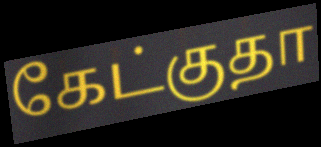
கேட்குதா